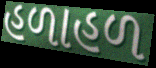
હળાહળ